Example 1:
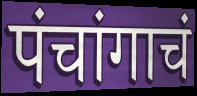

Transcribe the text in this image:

पंचांगाचं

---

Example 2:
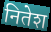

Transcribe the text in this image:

नितेश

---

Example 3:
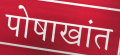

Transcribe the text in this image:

पोषाखांत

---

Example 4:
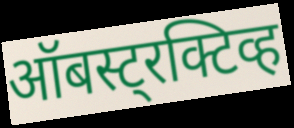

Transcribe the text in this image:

ऑबस्ट्रक्टिव्ह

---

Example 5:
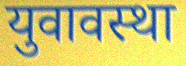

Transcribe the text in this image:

युवावस्था